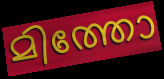
മിത്തോ